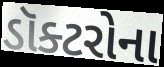
ડૉક્ટરોના